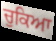
ਚੁਕਿਆ